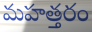
మహత్తరం